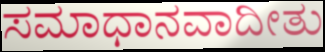
ಸಮಾಧಾನವಾದೀತು